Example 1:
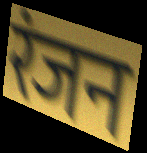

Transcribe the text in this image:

रंजन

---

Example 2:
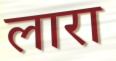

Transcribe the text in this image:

लारा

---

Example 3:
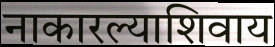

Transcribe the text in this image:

नाकारल्याशिवाय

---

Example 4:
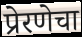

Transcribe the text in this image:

प्रेरणेचा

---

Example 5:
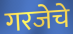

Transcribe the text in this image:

गरजेचे